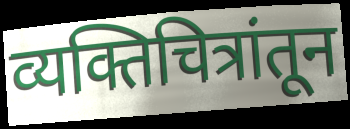
व्यक्तिचित्रांतून